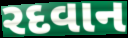
રદવાન